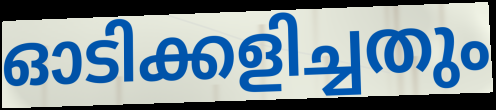
ഓടിക്കളിച്ചതും